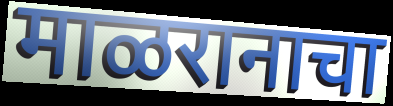
माळरानाचा